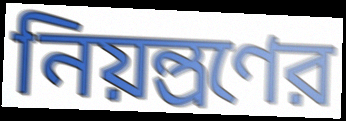
নিয়ন্ত্রণের